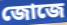
জোজে